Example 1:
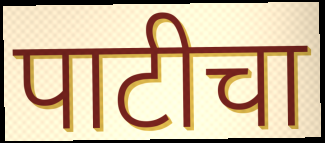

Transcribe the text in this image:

पाटीचा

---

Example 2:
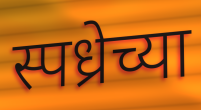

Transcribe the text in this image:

स्पध्रेच्या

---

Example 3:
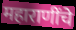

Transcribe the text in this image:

महाराणींचे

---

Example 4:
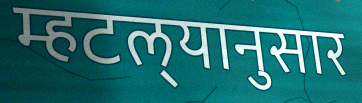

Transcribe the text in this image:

म्हटल्यानुसार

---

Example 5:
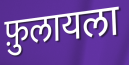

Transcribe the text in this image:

फ़ुलायला